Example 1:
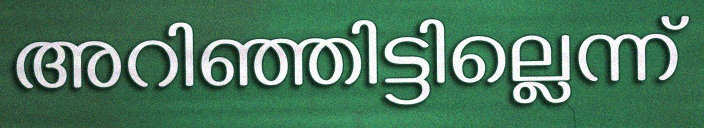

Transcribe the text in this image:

അറിഞ്ഞിട്ടില്ലെന്ന്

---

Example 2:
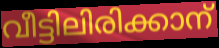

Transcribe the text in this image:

വീട്ടിലിരിക്കാന്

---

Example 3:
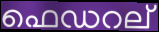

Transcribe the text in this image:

ഫെഡറല്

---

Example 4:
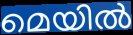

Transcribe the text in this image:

മെയിൽ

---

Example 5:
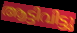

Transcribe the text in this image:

ആട്ടിവിട്ടു